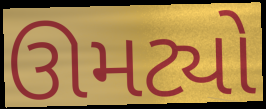
ઊમટ્યો